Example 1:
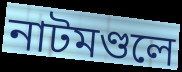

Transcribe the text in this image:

নাটমণ্ডলে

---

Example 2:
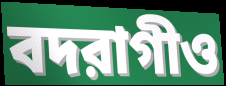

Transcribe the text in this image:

বদরাগীও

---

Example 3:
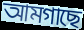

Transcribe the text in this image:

আমগাছে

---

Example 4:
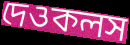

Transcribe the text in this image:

দেওকলস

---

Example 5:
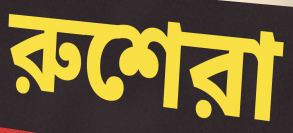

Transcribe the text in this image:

রুশেরা